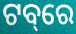
ଟବ୍‌ରେ